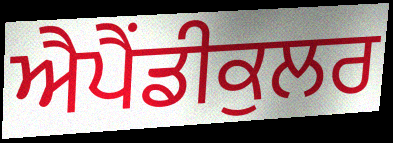
ਐਪੈਂਡੀਕੁਲਰ